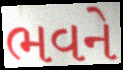
ભવને